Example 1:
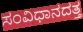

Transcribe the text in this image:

ಸಂವಿಧಾನದತ್ತ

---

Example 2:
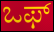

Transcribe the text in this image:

ಒಫ್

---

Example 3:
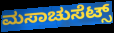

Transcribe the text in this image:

ಮಸಾಚುಸೆಟ್ಸ್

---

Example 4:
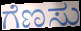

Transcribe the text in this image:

ಗೆಣಸು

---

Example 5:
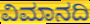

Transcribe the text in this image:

ವಿಮಾನದಿ